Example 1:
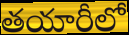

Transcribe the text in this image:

తయారీలో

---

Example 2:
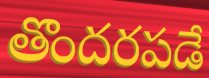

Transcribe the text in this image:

తొందరపడే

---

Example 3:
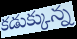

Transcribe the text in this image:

కడుక్కున్న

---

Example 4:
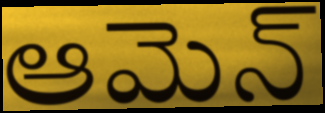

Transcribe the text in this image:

ఆమెన్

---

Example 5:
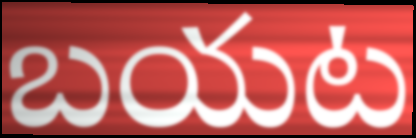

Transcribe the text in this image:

బయట